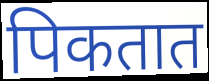
पिकतात